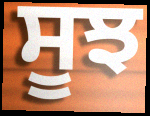
ਸੂਝ